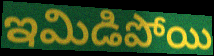
ఇమిడిపోయి